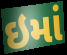
ઇમાં